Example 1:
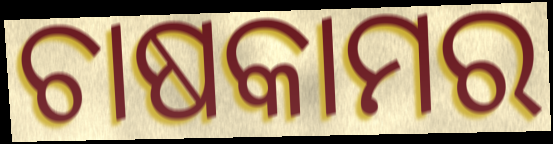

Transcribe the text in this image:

ଚାଷକାମର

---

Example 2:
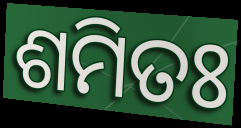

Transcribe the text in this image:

ଶମିତଃ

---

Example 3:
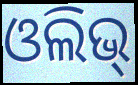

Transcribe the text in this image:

ଓଲିଭ୍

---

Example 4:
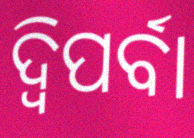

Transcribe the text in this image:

ଦ୍ଵିପର୍ବା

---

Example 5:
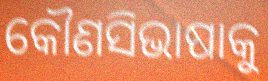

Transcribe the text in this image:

କୌଣସିଭାଷାକୁ